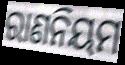
ରାଣନିୟମ